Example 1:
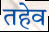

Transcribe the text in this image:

तहेव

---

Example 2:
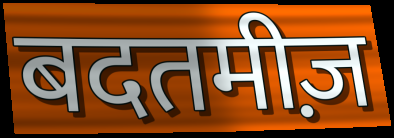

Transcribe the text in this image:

बदतमीज़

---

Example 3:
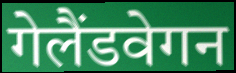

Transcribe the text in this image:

गेलैंडवेगन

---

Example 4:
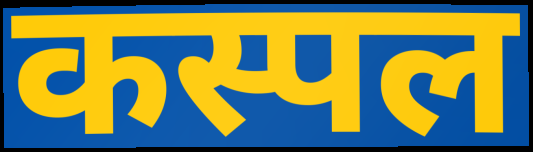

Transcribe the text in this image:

कस्पल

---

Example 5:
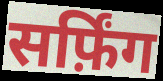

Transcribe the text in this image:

सर्फ़िंग